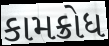
કામક્રોધ